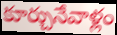
కూర్చునేవాళ్లం